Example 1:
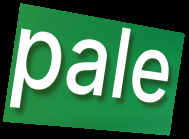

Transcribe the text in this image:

pale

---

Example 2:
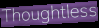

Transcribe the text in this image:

Thoughtless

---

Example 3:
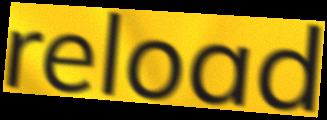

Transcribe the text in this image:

reload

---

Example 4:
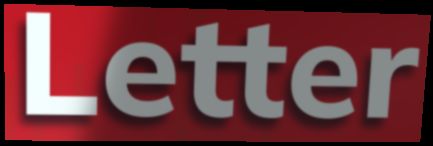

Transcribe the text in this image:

Letter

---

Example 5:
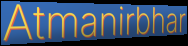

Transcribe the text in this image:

Atmanirbhar